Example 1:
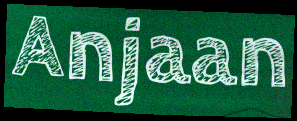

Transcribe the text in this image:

Anjaan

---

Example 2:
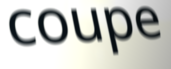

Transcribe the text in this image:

coupe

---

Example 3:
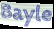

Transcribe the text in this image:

Bayle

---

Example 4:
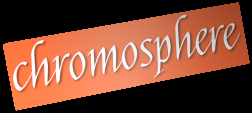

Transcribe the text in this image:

chromosphere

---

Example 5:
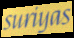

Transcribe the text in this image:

suriyas